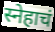
स्नेहाचं